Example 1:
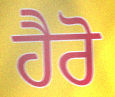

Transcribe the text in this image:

ਹੈਰੋ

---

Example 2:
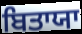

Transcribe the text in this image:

ਬਿਤਾਯਾ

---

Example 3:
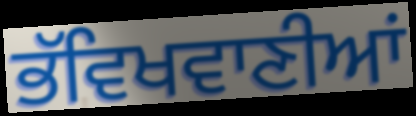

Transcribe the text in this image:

ਭੱਵਿਖਵਾਣੀਆਂ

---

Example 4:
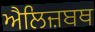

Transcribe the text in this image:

ਐਲਿਜ਼ਬਥ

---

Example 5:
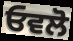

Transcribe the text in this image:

ਓਵਲੋ